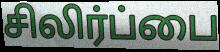
சிலிர்ப்பை